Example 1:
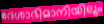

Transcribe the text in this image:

ദേശാഭിമാനിയിലും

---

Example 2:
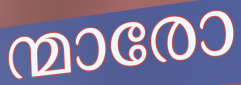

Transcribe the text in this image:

ന്മാരോ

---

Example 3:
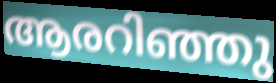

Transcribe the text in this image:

ആരറിഞ്ഞു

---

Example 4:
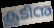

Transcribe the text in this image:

കൂടിനു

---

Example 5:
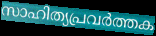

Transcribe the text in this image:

സാഹിത്യപ്രവർത്തക